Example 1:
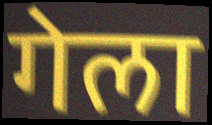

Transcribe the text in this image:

गेला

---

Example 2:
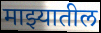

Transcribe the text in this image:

माझ्यातील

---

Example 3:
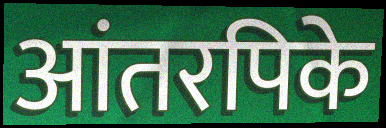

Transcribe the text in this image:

आंतरपिके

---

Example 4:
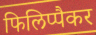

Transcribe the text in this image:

फिलिप्पैकर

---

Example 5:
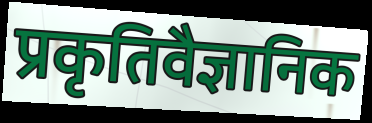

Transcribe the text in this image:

प्रकृतिवैज्ञानिक